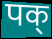
पक्